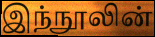
இந்நூலின்